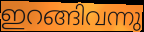
ഇറങ്ങിവന്നു